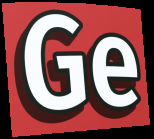
Ge